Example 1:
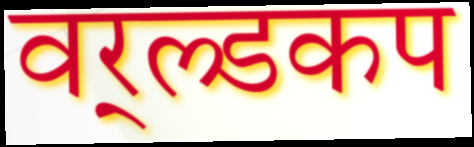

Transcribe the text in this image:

वर्ल्डकप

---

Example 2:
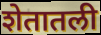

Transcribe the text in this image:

शेतातली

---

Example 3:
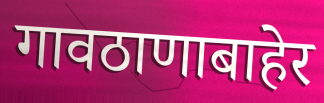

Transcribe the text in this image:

गावठाणाबाहेर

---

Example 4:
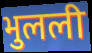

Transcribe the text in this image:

भुलली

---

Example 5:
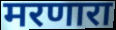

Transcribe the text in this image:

मरणारा